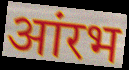
आंरभ